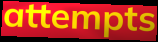
attempts